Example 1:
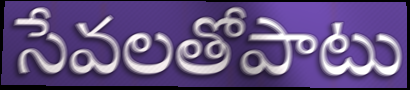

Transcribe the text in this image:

సేవలతోపాటు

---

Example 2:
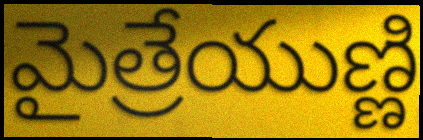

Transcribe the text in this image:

మైత్రేయుణ్ణి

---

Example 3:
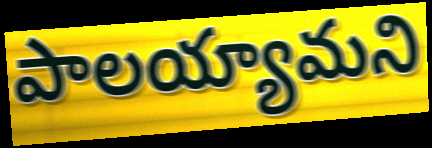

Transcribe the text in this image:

పాలయ్యామని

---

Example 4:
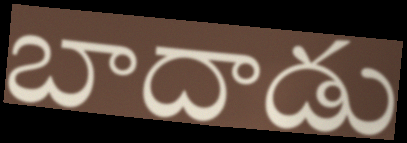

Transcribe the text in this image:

బాదాడు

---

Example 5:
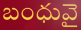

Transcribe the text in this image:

బంధువై